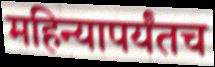
महिन्यापर्यंतच